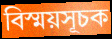
বিস্ময়সূচক